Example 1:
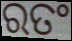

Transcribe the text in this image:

ରତଂ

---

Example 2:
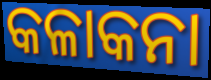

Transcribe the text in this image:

କଳାକନା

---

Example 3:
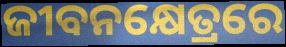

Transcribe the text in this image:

ଜୀବନକ୍ଷେତ୍ରରେ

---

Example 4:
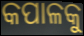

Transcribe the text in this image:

କପାଳକୁ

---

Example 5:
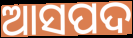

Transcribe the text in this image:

ଆସପଦ